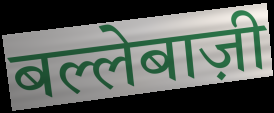
बल्‍लेबाज़ी